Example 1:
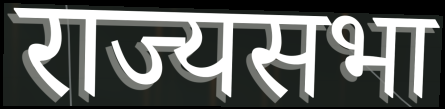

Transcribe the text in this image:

राज्यसभा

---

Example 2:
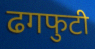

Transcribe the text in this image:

ढगफुटी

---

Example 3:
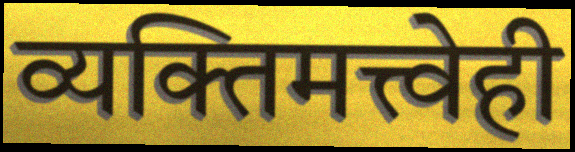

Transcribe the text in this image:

व्यक्तिमत्त्वेही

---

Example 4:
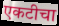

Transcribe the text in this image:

एकटीचा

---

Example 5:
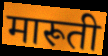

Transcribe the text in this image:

मारूती